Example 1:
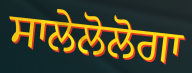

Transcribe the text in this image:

ਸਾਲੇਲੋਲੋਗਾ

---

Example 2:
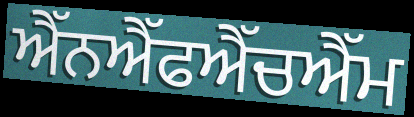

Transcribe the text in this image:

ਐੱਨਐੱਫਐੱਚਐੱਮ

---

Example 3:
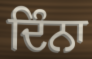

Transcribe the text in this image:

ਦਿੰਨਾ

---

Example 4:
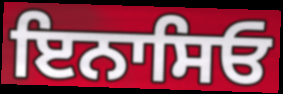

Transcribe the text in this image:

ਇਨਾਸਿਓ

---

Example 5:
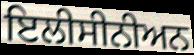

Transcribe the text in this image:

ਇਲੀਸੀਨੀਅਨ